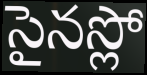
సైనస్లో